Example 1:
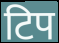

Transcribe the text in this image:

टिप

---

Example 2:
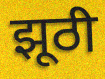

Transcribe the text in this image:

झूठी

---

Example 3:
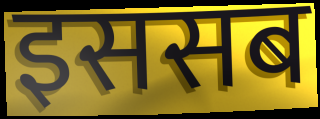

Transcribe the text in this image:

इससब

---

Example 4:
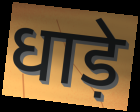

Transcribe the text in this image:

धाड़े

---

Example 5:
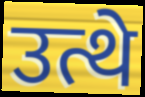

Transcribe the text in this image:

उत्थे